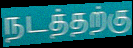
நடத்தற்கு